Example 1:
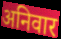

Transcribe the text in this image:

अनिवार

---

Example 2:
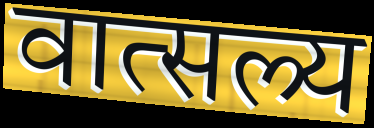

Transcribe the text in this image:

वात्सल्य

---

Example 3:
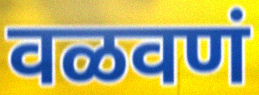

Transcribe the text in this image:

वळवणं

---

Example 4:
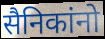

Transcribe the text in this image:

सैनिकांनो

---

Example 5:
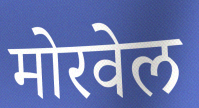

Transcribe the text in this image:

मोरवेल